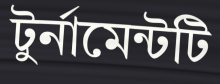
টুর্নামেন্টটি